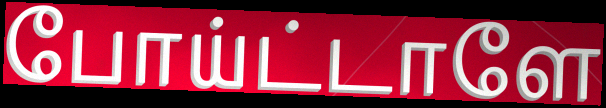
போய்ட்டாளே